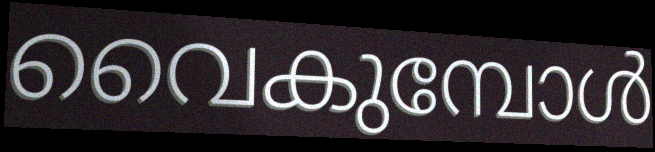
വൈകുമ്പോൾ